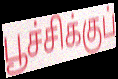
பூச்சிக்குப்